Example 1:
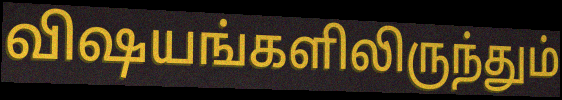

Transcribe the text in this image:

விஷயங்களிலிருந்தும்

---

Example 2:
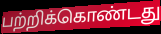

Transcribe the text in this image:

பற்றிக்கொண்டது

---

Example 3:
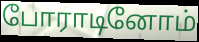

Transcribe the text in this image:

போராடினோம்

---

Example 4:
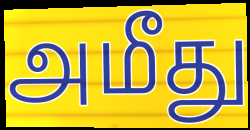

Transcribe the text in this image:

அமீது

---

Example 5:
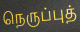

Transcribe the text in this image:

நெருப்புத்